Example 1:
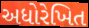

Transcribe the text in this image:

અધોરેખિત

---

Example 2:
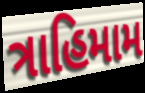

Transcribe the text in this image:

ત્રાહિમામ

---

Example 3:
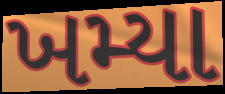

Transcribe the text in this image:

ખમ્યા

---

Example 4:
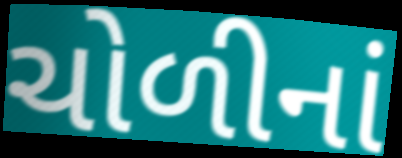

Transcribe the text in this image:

ચોળીનાં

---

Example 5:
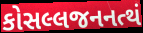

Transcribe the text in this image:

કોસલ્લજનનત્થં